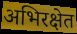
अभिरक्षेत